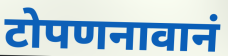
टोपणनावानं